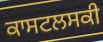
ਕਾਸਟਲਸਕੀ